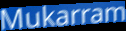
Mukarram